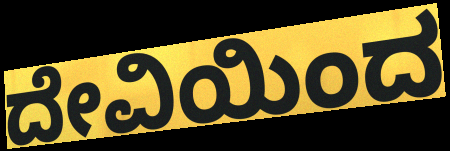
ದೇವಿಯಿಂದ